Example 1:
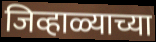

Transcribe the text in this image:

जिव्हाळ्याच्या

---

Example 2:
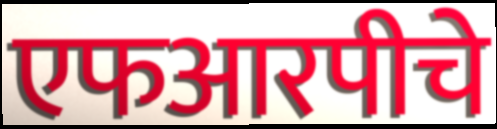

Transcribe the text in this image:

एफआरपीचे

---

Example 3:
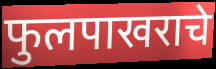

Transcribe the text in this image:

फुलपाखराचे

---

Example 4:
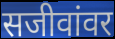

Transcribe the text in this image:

सजीवांवर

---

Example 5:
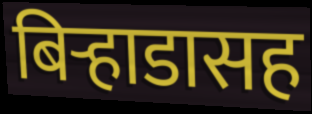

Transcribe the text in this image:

बिऱ्हाडासह